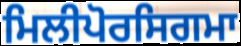
ਮਿਲੀਪੋਰਸਿਗਮਾ